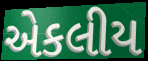
એકલીય